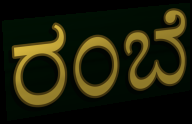
ರಂಬೆ